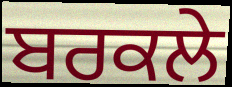
ਬਰਕਲੇ